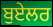
ਬੁਏਲਰ